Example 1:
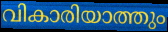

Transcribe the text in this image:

വികാരിയാത്തും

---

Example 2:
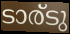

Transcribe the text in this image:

ടാര്ടു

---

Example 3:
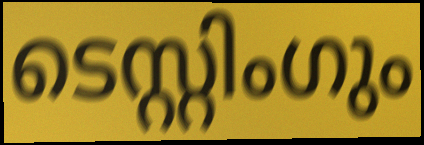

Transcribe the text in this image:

ടെസ്റ്റിംഗും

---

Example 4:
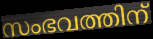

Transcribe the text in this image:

സംഭവത്തിന്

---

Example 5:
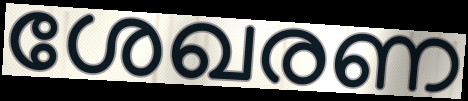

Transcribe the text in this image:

ശേഖരണ